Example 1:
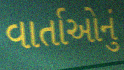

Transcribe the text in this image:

વાર્તાઓનું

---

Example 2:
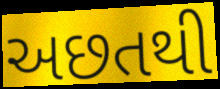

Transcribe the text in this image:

અછતથી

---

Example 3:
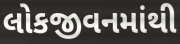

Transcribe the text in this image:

લોકજીવનમાંથી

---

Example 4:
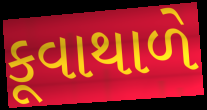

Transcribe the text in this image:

કૂવાથાળે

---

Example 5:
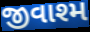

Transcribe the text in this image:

જીવાશ્મ